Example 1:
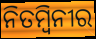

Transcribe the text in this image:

ନିତମ୍ବିନୀର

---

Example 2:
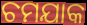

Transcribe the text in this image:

ଚମଯାକ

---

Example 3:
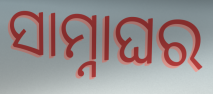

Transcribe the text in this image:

ସାମ୍ନାଘର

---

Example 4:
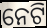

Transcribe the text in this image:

ନେଟି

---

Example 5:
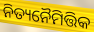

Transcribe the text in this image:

ନିତ୍ୟନୈମିତ୍ତିକ